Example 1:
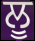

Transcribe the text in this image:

ਲੂ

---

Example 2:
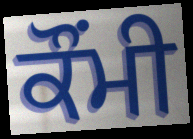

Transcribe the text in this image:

ਕੌਂਮੀ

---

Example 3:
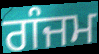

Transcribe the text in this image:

ਗੰਜਮ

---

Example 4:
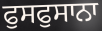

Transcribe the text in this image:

ਫੁਸਫੁਸਾਨਾ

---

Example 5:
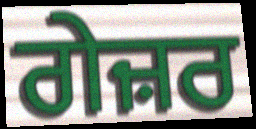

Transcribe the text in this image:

ਗੇਜ਼ਰ